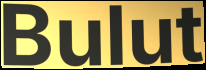
Bulut